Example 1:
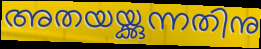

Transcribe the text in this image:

അതയയ്ക്കുന്നതിനു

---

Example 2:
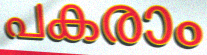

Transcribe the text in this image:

പകരാം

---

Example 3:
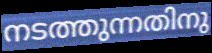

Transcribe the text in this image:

നടത്തുന്നതിനു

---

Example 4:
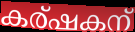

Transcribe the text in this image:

കര്ഷകന്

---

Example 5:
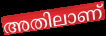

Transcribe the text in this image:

അതിലാണ്